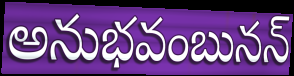
అనుభవంబునన్